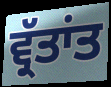
ਵ੍ਰੱਤਾਂਤ